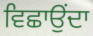
ਵਿਛਾਉਂਦਾ